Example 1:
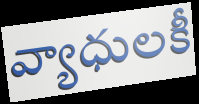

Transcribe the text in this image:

వ్యాధులకీ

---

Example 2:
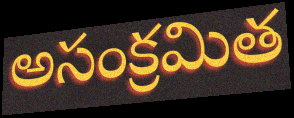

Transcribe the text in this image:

అసంక్రమిత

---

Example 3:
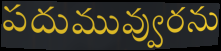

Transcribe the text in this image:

పదుమువ్వురను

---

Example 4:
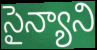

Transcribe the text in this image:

సైన్యాని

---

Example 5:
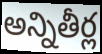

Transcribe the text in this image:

అన్నితీర్ల